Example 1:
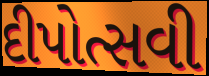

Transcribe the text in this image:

દીપોત્સવી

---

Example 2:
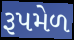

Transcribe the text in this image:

રૂપમેળ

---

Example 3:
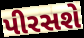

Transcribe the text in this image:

પીરસશે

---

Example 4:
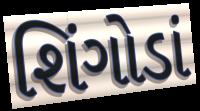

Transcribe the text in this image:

શિંગોડાં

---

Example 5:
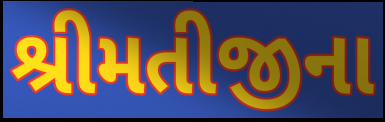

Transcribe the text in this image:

શ્રીમતીજીના